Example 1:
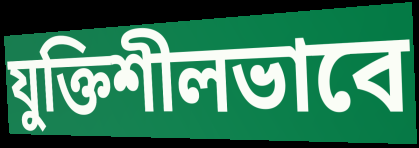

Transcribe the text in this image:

যুক্তিশীলভাবে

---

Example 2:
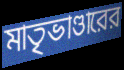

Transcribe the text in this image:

মাতৃভাণ্ডারের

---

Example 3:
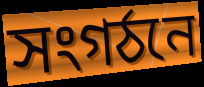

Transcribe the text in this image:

সংগঠনে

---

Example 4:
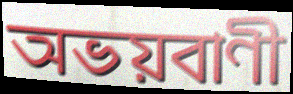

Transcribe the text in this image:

অভয়বাণী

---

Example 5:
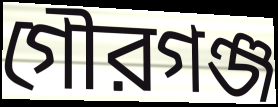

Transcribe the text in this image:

গৌরগঞ্জ